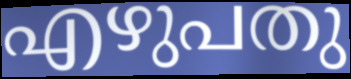
എഴുപതു